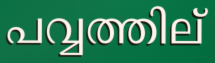
പവ്വത്തില്